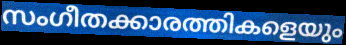
സംഗീതക്കാരത്തികളെയും